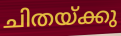
ചിതയ്ക്കു